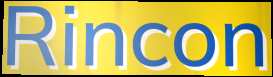
Rincon